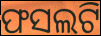
ଫସଲଟି